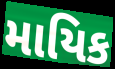
માયિક